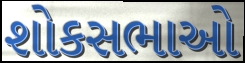
શોકસભાઓ